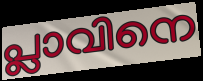
പ്ലാവിനെ